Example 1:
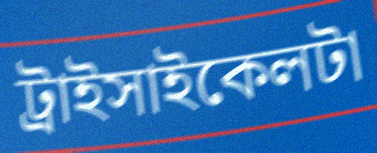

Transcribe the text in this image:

ট্রাইসাইকেলটা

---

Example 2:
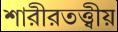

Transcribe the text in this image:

শারীরতত্ত্বীয়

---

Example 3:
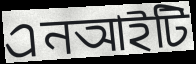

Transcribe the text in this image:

এনআইটি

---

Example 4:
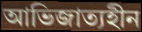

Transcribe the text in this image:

আভিজাত্যহীন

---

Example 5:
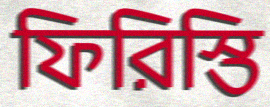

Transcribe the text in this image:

ফিরিস্তি